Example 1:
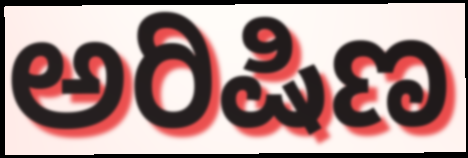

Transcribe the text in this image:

ಅರಿಷಿಣ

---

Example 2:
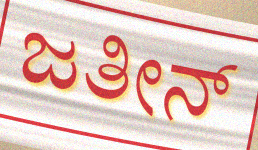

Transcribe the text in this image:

ಜತೀನ್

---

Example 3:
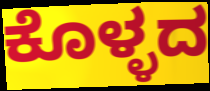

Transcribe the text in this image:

ಕೊಳ್ಳದ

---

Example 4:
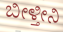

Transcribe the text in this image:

ಬೀಳ್ತೀನಿ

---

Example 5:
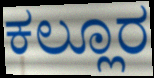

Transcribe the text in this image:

ಕಲ್ಲೂರ